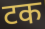
टक